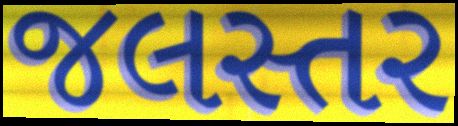
જલસ્તર